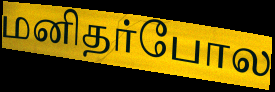
மனிதர்போல